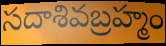
సదాశివబ్రహ్మం